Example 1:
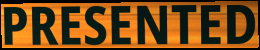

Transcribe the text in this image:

PRESENTED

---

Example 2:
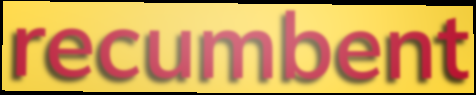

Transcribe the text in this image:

recumbent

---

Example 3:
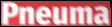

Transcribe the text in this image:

Pneuma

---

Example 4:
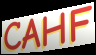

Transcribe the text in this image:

CAHF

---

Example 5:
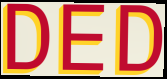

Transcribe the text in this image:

DED